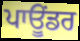
ਪਾਊਂਡਰ